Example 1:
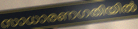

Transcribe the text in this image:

സാധാരണഗതിയിൽ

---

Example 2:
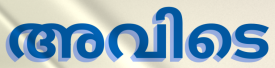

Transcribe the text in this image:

അവിടെ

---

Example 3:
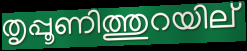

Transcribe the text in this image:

തൃപ്പൂണിത്തുറയില്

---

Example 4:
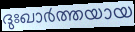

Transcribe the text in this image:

ദുഃഖാർത്തയായ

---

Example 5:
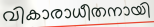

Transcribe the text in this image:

വികാരാധീതനായി